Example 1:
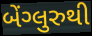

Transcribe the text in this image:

બેંગ્લુરુથી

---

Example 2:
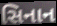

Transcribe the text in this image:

સિનાન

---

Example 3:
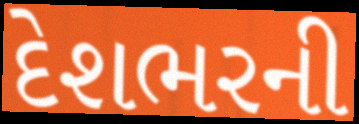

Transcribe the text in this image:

દેશભરની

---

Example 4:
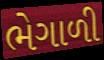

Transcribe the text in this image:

ભેગાળી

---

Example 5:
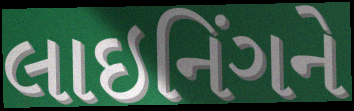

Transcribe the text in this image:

લાઇનિંગને